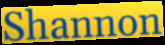
Shannon